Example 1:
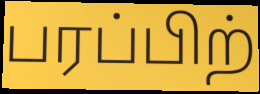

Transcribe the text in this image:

பரப்பிற்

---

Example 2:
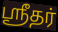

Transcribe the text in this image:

ஸ்ரீதர்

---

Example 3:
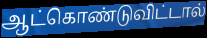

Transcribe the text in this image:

ஆட்கொண்டுவிட்டால்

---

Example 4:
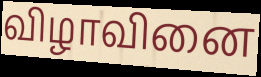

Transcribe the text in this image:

விழாவினை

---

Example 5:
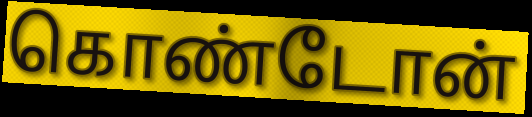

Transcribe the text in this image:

கொண்டோன்